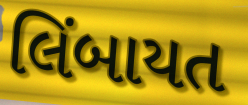
લિંબાયત